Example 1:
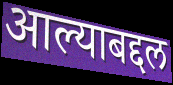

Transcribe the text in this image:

आल्याबद्दल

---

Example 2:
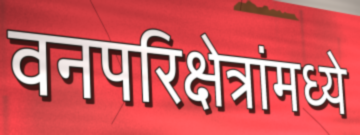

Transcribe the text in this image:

वनपरिक्षेत्रांमध्ये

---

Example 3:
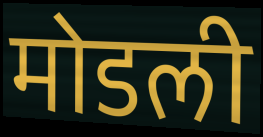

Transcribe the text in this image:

मोडली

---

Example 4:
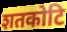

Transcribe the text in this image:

शतकोटि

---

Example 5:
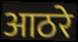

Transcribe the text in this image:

आठरे